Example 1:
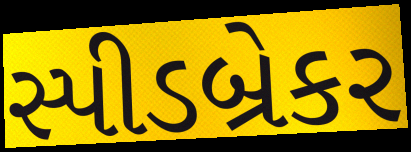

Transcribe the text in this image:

સ્પીડબ્રેકર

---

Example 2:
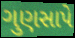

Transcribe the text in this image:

ગુણસાપે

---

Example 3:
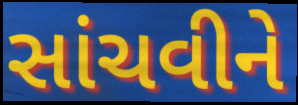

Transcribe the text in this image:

સાંચવીને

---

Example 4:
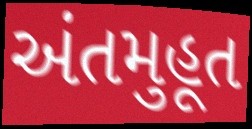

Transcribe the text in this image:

અંતમુહૂત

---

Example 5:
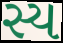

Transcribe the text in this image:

સ્ય